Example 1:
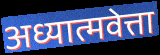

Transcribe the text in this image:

अध्यात्मवेत्ता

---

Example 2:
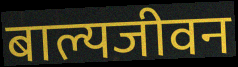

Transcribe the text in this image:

बाल्यजीवन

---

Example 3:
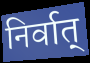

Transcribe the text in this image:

निर्वात्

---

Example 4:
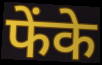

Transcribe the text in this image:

फेंके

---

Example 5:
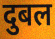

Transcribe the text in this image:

दुबल